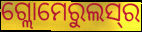
ଗ୍ଲୋମେରୁଲସ୍‌ର